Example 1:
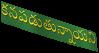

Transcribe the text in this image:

కనపడుతున్నాయని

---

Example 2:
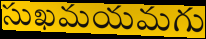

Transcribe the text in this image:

సుఖమయమగు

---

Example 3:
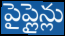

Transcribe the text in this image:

పైప్లైన్లు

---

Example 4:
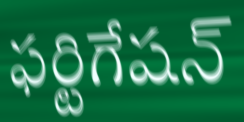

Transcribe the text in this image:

ఫర్టిగేషన్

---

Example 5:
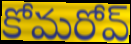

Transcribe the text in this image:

కోమరోవ్